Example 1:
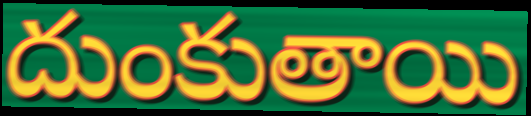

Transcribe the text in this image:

దుంకుతాయి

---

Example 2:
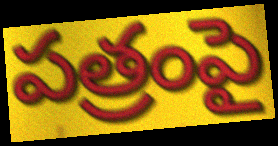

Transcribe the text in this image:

పత్రంపై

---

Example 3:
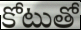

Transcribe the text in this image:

కోటుతో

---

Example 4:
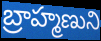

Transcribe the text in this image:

బ్రాహ్మణుని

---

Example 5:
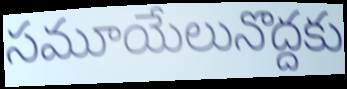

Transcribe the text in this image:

సమూయేలునొద్దకు